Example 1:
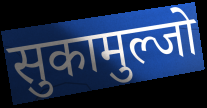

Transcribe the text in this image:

सुकामुल्जो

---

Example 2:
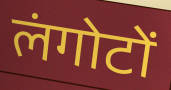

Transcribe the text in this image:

लंगोटों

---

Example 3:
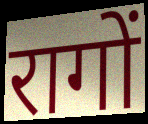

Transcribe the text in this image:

रागों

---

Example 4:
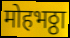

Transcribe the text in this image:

मोहभठ्ठा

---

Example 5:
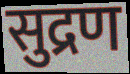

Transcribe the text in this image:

सुद्रण